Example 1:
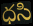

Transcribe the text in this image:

ధసి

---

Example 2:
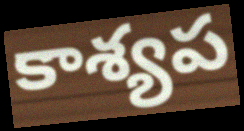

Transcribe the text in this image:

కాశ్యప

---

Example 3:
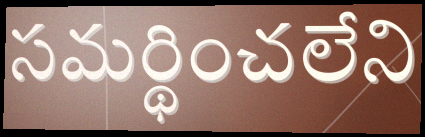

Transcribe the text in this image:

సమర్థించలేని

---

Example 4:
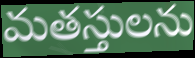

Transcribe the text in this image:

మతస్తులను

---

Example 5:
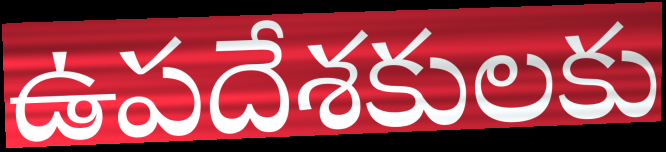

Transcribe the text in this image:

ఉపదేశకులకు